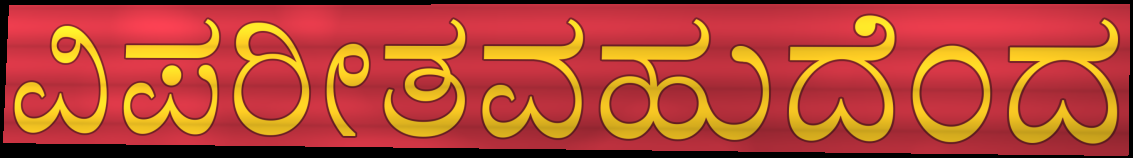
ವಿಪರೀತವಹುದೆಂದ